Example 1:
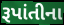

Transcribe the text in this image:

રૂપાંતીના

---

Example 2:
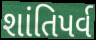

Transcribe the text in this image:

શાંતિપર્વ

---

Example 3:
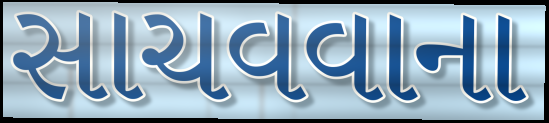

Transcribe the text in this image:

સાચવવાના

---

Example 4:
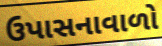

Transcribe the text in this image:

ઉપાસનાવાળો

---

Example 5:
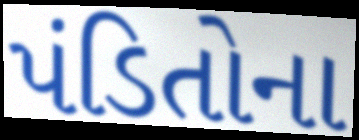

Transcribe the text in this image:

પંડિતોના